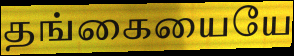
தங்கையையே